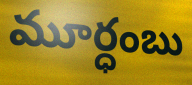
మూర్ధంబు